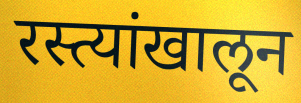
रस्त्यांखालून